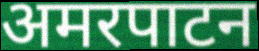
अमरपाटन